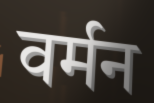
वर्मन